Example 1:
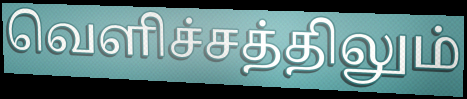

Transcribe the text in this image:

வெளிச்சத்திலும்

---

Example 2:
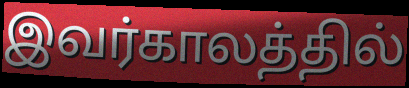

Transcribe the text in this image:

இவர்காலத்தில்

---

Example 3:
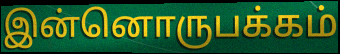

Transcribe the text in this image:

இன்னொருபக்கம்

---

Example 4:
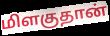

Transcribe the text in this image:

மிளகுதான்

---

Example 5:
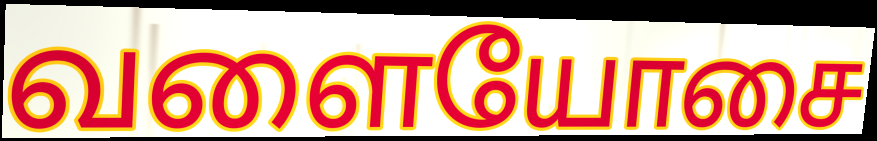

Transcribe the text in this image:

வளையோசை